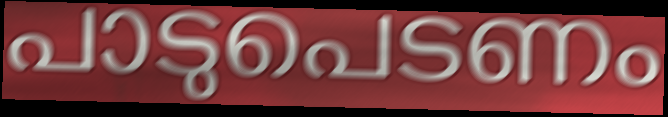
പാടുപെടണം